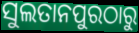
ସୁଲତାନପୁରଠାରୁ